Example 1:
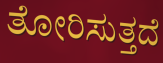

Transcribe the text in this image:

ತೋರಿಸುತ್ತದೆ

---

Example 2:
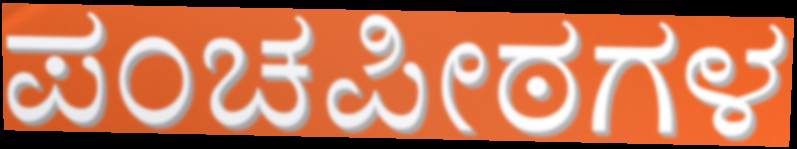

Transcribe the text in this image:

ಪಂಚಪೀಠಗಳ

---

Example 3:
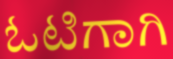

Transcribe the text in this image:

ಓಟಿಗಾಗಿ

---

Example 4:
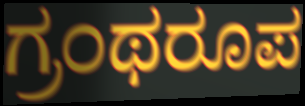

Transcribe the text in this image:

ಗ್ರಂಥರೂಪ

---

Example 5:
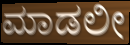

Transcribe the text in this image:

ಮಾಡಲೀ